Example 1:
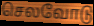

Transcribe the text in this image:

செலவோடு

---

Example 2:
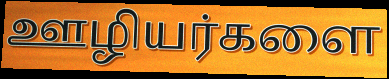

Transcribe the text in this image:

ஊழியர்களை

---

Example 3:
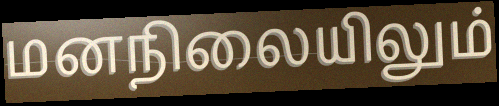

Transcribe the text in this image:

மனநிலையிலும்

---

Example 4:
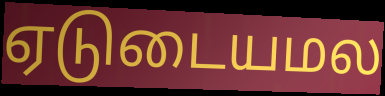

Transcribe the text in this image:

ஏடுடையமல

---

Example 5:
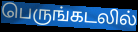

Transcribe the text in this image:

பெருங்கடலில்